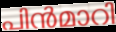
പിൻമാറി